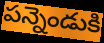
పన్నెండుకి